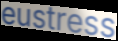
eustress